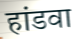
हांडवा